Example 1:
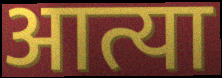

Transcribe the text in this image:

आत्या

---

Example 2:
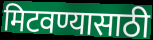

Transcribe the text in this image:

मिटवण्यासाठी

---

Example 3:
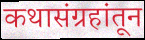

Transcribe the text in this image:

कथासंग्रहांतून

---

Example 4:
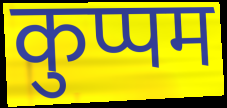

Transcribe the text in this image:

कुप्पम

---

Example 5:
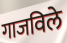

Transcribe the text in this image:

गाजविले